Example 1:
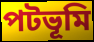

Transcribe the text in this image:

পটভূমি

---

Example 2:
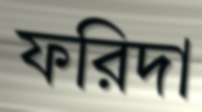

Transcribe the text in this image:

ফরিদা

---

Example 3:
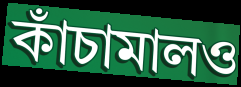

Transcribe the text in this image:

কাঁচামালও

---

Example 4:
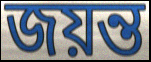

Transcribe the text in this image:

জয়ন্ত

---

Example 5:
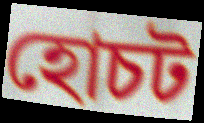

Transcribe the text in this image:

হোচট